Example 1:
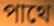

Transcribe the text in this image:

পাথে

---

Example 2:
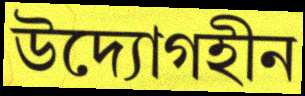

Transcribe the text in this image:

উদ্যোগহীন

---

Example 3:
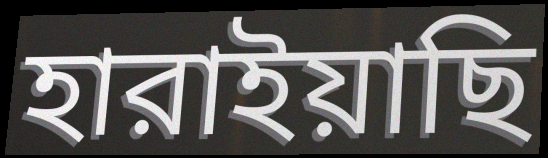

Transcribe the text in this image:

হারাইয়াছি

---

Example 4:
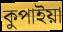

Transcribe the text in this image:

কুপাইয়া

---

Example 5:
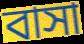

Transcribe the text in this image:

বাসা